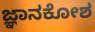
ಜ್ಞಾನಕೋಶ